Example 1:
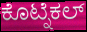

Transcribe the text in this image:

ಕೊಟ್ನೆಕಲ್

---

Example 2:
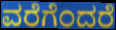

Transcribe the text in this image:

ವರೆಗೆಂದರೆ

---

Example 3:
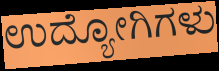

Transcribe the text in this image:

ಉದ್ಯೋಗಿಗಳು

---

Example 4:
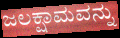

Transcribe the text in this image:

ಜಲಕ್ಷಾಮವನ್ನು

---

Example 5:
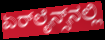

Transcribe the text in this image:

ಏರ್‌ಲೈನ್ಸ್‌ನಲ್ಲಿ